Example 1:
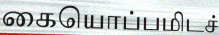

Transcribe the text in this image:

கையொப்பமிடச்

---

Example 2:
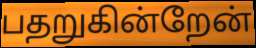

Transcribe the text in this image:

பதறுகின்றேன்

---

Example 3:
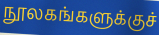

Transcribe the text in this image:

நூலகங்களுக்குச்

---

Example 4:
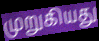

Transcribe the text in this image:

முறுகியது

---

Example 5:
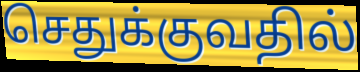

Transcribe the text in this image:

செதுக்குவதில்